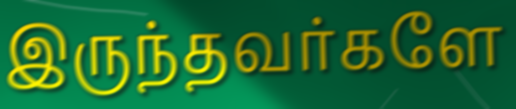
இருந்தவர்களே